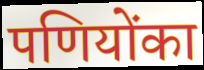
पणियोंका